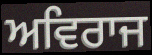
ਅਵਿਰਾਜ